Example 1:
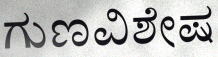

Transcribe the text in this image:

ಗುಣವಿಶೇಷ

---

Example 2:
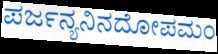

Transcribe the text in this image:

ಪರ್ಜನ್ಯನಿನದೋಪಮಂ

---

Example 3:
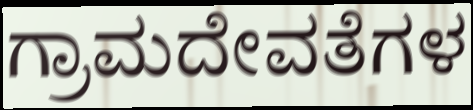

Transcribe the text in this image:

ಗ್ರಾಮದೇವತೆಗಳ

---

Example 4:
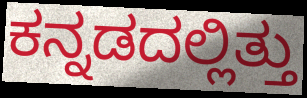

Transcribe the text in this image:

ಕನ್ನಡದಲ್ಲಿತ್ತು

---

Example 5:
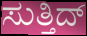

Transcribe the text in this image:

ಸುತ್ತಿದ್